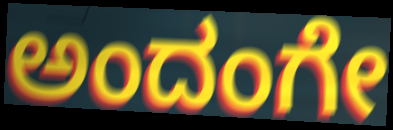
ಅಂದಂಗೇ